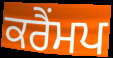
ਕਰੈਂਮਪ